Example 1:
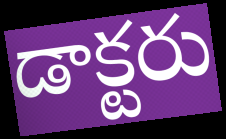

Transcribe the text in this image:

డాక్టరు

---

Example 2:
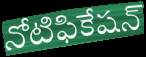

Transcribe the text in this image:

నోటిఫికేషన్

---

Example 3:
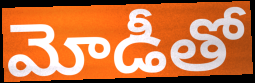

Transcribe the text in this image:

మోడీతో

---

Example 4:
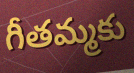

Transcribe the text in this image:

గీతమ్మకు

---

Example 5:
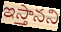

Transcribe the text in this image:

ఇస్తానని